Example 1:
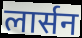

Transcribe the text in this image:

लार्सन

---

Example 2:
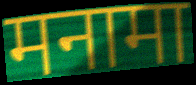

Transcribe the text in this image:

मनामा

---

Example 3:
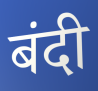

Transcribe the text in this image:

बंदी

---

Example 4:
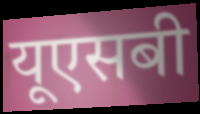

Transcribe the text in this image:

यूएसबी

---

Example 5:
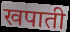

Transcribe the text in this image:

खपाती